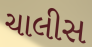
ચાલીસ